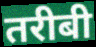
तरीबी